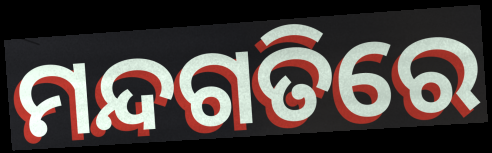
ମନ୍ଦଗତିରେ